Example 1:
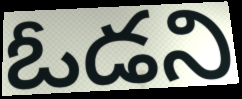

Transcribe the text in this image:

ఓడని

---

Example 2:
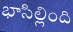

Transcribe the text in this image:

భాసిల్లింది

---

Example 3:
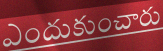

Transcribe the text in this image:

ఎందుకుంచారు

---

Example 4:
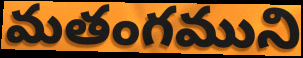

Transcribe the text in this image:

మతంగముని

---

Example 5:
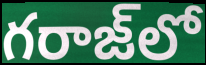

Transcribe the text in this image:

గరాజ్‌లో